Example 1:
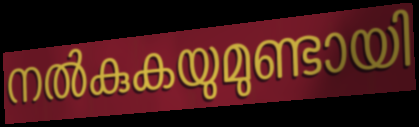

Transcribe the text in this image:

നൽകുകയുമുണ്ടായി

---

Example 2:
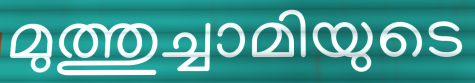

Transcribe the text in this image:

മുത്തുച്ചാമിയുടെ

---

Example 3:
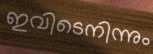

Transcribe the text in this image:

ഇവിടെനിന്നും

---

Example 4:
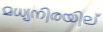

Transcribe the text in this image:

മധ്യനിരയില്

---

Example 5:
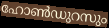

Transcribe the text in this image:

ഹോൺഡുറസും